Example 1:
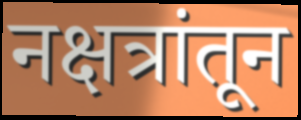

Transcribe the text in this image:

नक्षत्रांतून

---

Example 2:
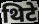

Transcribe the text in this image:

थिटे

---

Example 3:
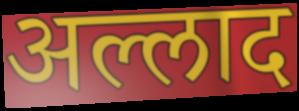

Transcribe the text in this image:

अल्लाद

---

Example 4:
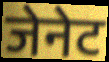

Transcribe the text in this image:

जेनेट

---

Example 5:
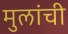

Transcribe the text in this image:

मुलांची